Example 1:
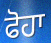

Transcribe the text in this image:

ਫੋਹਾ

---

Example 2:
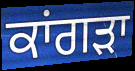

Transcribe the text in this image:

ਕਾਂਗੜਾ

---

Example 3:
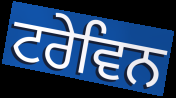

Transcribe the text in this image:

ਟਰੇਵਿਨ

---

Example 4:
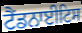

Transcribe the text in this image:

ਟੈਂਡਨਾਈਟਿਸ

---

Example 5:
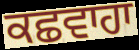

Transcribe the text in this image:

ਕਛਵਾਹਾ